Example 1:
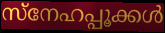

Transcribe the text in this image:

സ്നേഹപ്പൂക്കൾ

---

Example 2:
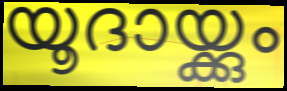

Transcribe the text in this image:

യൂദായ്ക്കും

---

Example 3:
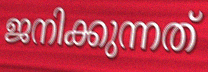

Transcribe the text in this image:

ജനിക്കുന്നത്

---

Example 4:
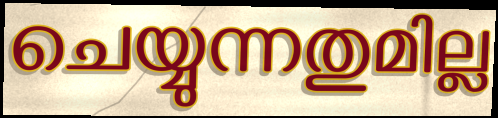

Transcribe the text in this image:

ചെയ്യുന്നതുമില്ല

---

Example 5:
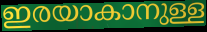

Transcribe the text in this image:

ഇരയാകാനുള്ള